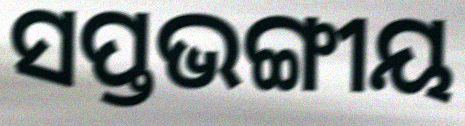
ସପ୍ତଭଙ୍ଗୀୟ